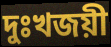
দুঃখজয়ী